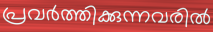
പ്രവർത്തിക്കുന്നവരിൽ